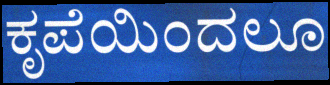
ಕೃಪೆಯಿಂದಲೂ